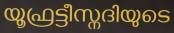
യൂഫ്രട്ടീസ്നദിയുടെ